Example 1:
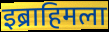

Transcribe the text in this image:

इब्राहिमला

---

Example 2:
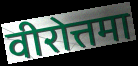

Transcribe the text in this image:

वीरोत्तमा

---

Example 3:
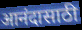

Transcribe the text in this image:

आनंदासाठी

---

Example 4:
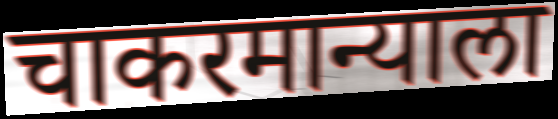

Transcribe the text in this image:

चाकरमान्याला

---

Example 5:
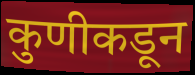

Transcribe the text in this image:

कुणीकडून